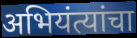
अभियंत्यांचा